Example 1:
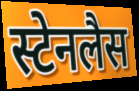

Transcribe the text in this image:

स्टेनलैस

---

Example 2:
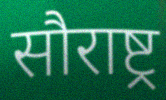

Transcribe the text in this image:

सौराष्ट्र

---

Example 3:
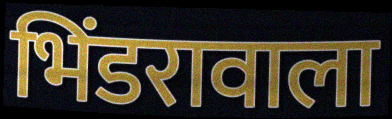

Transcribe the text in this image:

भिंडरावाला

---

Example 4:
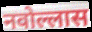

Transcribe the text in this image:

नवोल्लास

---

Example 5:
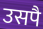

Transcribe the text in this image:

उसपै